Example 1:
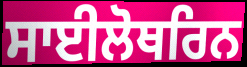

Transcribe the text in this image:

ਸਾਈਲੋਥਰਿਨ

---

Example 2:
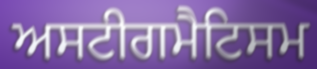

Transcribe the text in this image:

ਅਸਟੀਗਮੈਟਿਸਮ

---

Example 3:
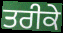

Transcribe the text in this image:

ਤਰੀਕੇ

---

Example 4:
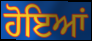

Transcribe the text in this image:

ਹੋਇਆਂ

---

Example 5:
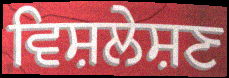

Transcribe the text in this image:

ਵਿਸ਼ਲੇਸ਼ਣ